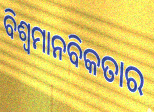
ବିଶ୍ଵମାନବିକତାର